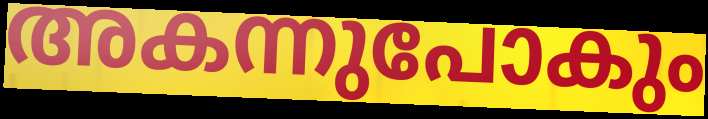
അകന്നുപോകും